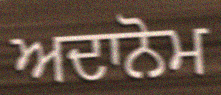
ਅਦਾਨੋਮ